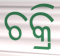
ଚକ୍ରି